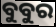
ବୁବୁର